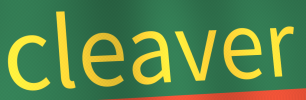
cleaver